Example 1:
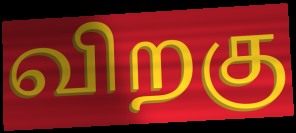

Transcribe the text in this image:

விறகு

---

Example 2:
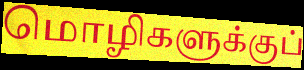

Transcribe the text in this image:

மொழிகளுக்குப்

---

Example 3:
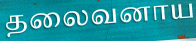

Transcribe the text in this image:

தலைவனாய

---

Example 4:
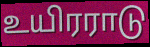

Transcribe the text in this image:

உயிரராடு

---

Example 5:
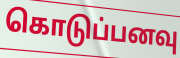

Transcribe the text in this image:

கொடுப்பனவு